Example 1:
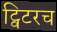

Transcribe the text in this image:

ट्विटरच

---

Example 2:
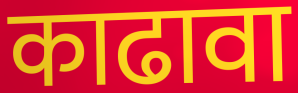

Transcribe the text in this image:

काढावा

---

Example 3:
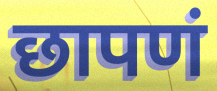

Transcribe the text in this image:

छापणं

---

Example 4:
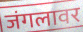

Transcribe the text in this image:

जंगलावर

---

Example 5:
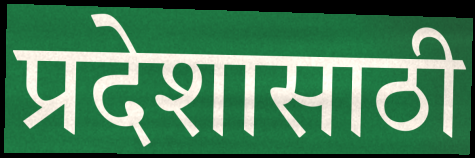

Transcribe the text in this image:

प्रदेशासाठी